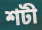
শটী